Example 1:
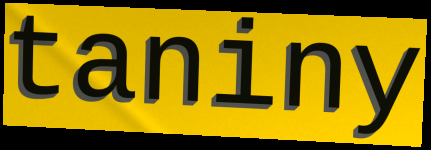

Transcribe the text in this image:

taniny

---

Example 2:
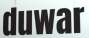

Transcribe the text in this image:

duwar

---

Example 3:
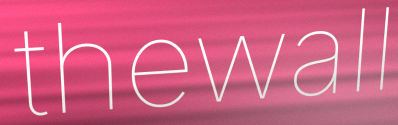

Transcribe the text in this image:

thewall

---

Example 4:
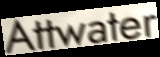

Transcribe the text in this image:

Attwater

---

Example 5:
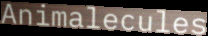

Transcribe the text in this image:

Animalecules